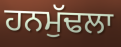
ਹਨਮੁੱਢਲਾ